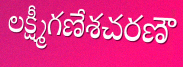
లక్ష్మీగణేశచరణౌ